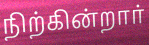
நிற்கின்றார்